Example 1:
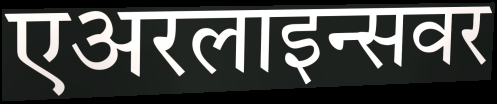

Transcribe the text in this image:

एअरलाइन्सवर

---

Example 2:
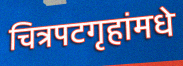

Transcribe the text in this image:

चित्रपटगृहांमधे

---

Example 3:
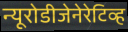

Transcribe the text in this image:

न्यूरोडीजेनेरेटिव्ह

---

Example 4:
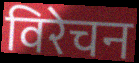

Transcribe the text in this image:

विरेचन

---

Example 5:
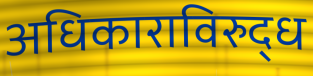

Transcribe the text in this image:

अधिकाराविरुद्ध